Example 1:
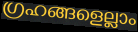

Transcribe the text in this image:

ഗ്രഹങ്ങളെല്ലാം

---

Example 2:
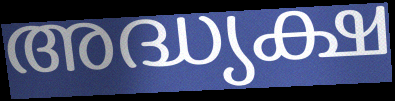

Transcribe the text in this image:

അദ്ധ്യക്ഷ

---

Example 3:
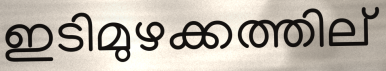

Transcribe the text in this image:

ഇടിമുഴക്കത്തില്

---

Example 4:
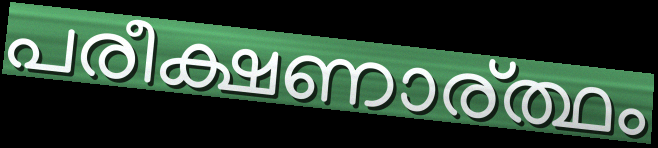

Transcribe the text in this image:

പരീക്ഷണാര്ത്ഥം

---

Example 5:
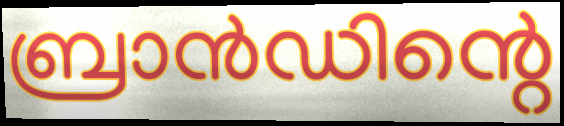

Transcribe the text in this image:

ബ്രാൻഡിന്റെ